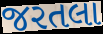
જરતલા